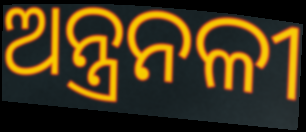
ଅନ୍ତ୍ରନଳୀ